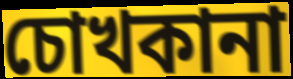
চোখকানা